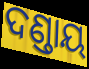
ଦଣ୍ଡାୟ